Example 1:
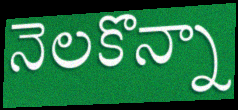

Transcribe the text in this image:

నెలకొన్నా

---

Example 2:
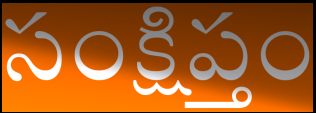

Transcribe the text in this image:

సంక్షిప్తం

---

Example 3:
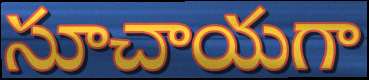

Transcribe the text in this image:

సూచాయగా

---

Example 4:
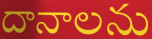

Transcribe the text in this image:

దానాలను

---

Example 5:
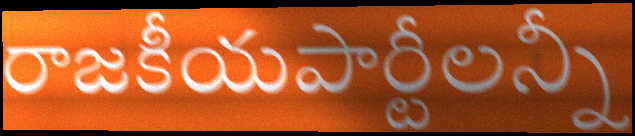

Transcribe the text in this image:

రాజకీయపార్టీలన్నీ